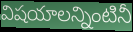
విషయాలన్నింటినీ